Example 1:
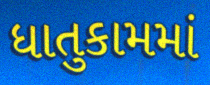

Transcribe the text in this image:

ધાતુકામમાં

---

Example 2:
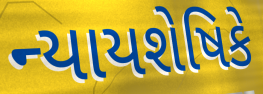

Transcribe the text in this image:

ન્યાયશેષિકે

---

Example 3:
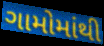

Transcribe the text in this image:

ગામોમાંથી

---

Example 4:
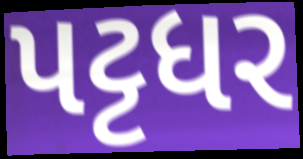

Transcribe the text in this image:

પટ્ટધર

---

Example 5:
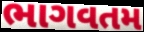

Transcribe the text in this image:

ભાગવતમ